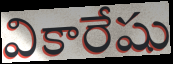
వికారేషు